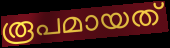
രൂപമായത്